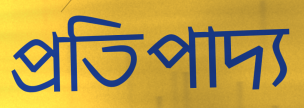
প্রতিপাদ্য